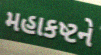
મહાકષ્ટને